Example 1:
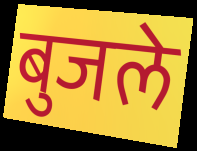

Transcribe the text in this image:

बुजले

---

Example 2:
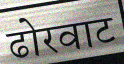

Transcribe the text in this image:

ढोरवाट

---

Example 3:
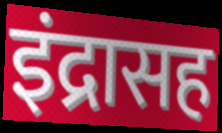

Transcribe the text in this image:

इंद्रासह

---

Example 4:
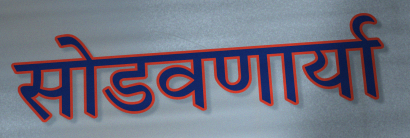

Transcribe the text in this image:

सोडवणार्या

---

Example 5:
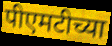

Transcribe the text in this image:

पीएमटीच्या